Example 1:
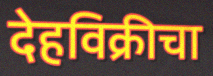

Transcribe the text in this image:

देहविक्रीचा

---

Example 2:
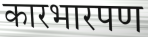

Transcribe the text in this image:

कारभारपण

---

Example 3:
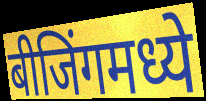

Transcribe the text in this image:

बीजिंगमध्ये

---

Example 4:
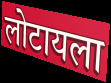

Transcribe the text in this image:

लोटायला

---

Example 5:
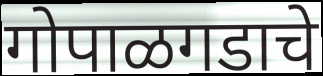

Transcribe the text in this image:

गोपाळगडाचे